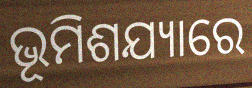
ଭୂମିଶଯ୍ୟାରେ